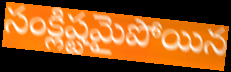
సంక్లిష్టమైపోయిన